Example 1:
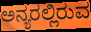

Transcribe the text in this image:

ಅನ್ಯರಲ್ಲಿರುವ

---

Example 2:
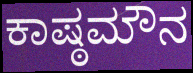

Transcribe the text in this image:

ಕಾಷ್ಠಮೌನ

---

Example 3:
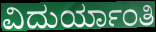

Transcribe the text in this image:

ವಿದುರ್ಯಾಂತಿ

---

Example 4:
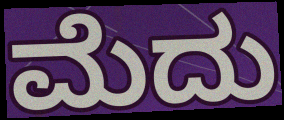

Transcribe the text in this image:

ಮೆದು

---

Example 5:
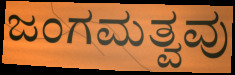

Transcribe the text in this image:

ಜಂಗಮತ್ವವು